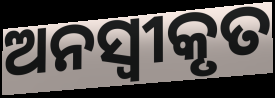
ଅନସ୍ବୀକୃତ